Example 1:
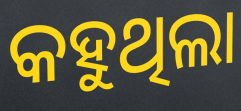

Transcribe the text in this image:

କହୁଥିଲା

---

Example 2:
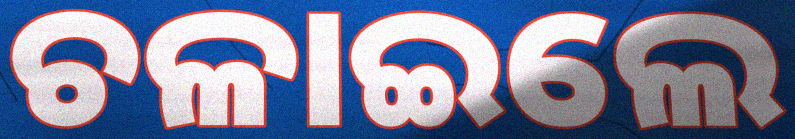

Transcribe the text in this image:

ଚଳାଇଲେ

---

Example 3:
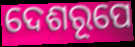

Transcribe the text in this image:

ଦେଶରୂପେ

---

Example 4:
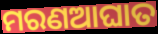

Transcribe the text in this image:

ମରଣଆଘାତ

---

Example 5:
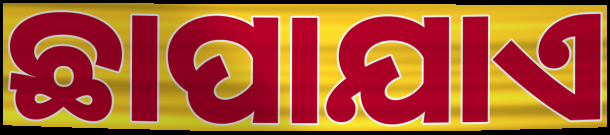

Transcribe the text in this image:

ଛାପାଯାଏ